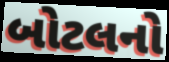
બોટલનો